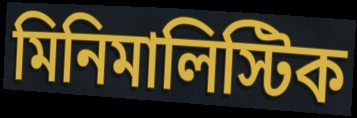
মিনিমালিস্টিক